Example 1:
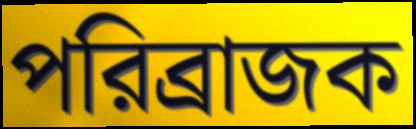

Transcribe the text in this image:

পরিব্রাজক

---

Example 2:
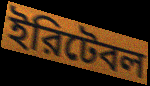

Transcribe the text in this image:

ইরিটেবল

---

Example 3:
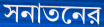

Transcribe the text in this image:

সনাতনের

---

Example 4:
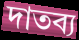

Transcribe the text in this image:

দাতব্য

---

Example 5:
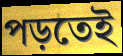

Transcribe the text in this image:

পড়তেই